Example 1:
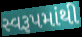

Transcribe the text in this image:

સ્વરૂપમાંથી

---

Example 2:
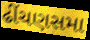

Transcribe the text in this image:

ઢીંચણસમા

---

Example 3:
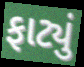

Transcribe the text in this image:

ફાટ્યું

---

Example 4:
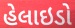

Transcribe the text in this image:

હેલાઇડો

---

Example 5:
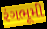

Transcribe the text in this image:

રંગભૂમી